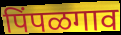
पिंपळगाव